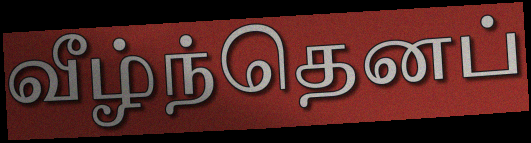
வீழ்ந்தெனப்